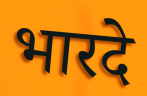
भारदे